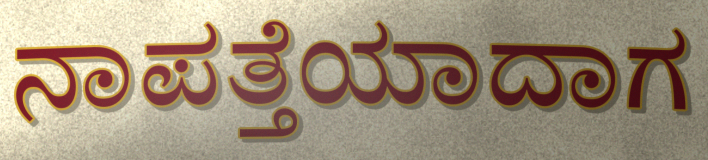
ನಾಪತ್ತೆಯಾದಾಗ